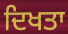
ਦਿਖਤਾ